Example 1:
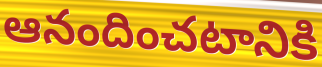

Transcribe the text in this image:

ఆనందించటానికి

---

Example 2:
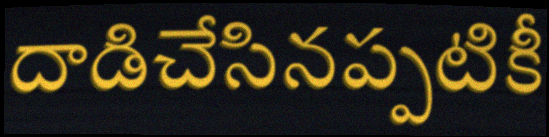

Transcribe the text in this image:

దాడిచేసినప్పటికీ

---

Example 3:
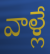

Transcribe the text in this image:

వాళ్లే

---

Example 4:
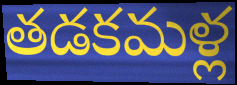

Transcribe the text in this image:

తడకమళ్ల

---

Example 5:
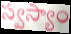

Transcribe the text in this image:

స్వస్యాం